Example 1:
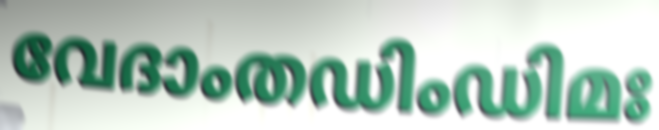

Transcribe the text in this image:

വേദാംതഡിംഡിമഃ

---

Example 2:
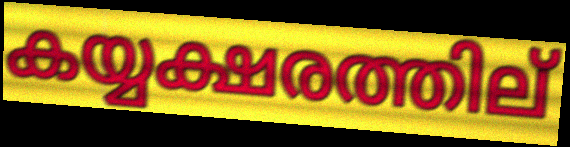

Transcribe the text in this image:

കയ്യക്ഷരത്തില്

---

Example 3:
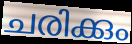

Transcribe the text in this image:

ചരിക്കും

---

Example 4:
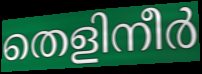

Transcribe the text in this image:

തെളിനീർ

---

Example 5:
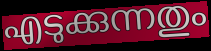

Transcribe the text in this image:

എടുക്കുന്നതും